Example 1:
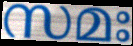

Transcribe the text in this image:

സമഃ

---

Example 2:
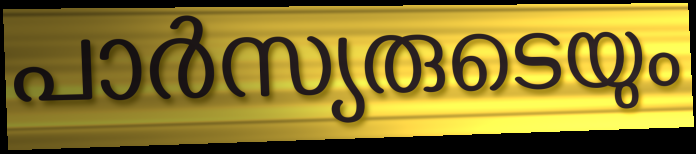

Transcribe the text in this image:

പാർസ്യരുടെയും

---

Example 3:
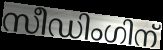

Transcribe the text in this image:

സീഡിംഗിന്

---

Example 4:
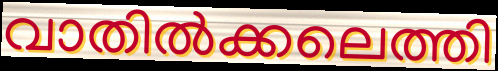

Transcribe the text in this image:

വാതിൽക്കലെത്തി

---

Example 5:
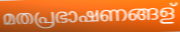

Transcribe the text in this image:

മതപ്രഭാഷണങ്ങള്